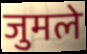
जुमले